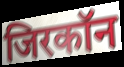
जिरकॉन